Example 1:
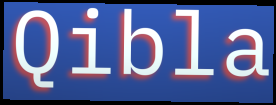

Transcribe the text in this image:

Qibla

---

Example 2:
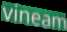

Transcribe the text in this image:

vineam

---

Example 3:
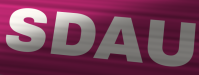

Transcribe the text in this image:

SDAU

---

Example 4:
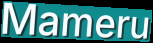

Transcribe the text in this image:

Mameru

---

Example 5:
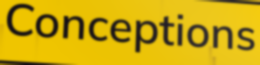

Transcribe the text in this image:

Conceptions